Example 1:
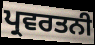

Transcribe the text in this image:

ਪ੍ਰਵਰਤਨੀ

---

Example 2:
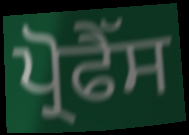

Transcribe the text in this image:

ਪ੍ਰੋਫੈੱਸ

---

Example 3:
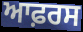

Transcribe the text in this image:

ਆਫ਼ਰਸ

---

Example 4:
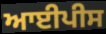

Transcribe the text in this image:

ਆਈਪੀਸ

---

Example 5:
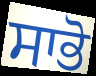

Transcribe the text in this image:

ਸਾਭੋ